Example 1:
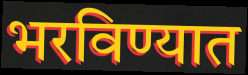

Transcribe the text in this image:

भरविण्यात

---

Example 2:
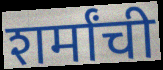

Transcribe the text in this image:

शर्मांची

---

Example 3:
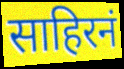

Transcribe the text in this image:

साहिरनं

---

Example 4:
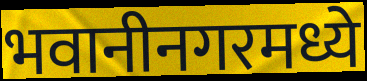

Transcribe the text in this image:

भवानीनगरमध्ये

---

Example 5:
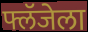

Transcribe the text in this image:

फ्लॅजेला